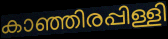
കാഞ്ഞിരപ്പിള്ളി